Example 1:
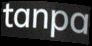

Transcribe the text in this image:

tanpa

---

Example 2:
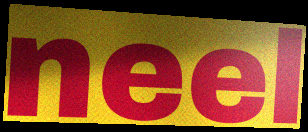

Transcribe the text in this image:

neel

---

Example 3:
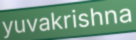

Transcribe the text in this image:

yuvakrishna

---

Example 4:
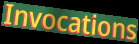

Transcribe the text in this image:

Invocations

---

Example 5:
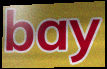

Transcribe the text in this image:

bay